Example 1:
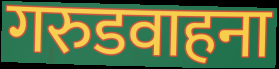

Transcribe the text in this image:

गरुडवाहना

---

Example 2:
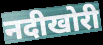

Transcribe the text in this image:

नदीखोरी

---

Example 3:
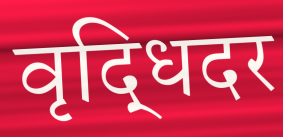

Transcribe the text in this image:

वृद्धिदर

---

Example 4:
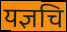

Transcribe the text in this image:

यज्ञचि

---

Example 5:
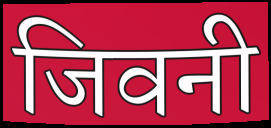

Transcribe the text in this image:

जिवनी